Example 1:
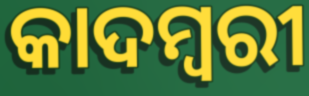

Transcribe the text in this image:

କାଦମ୍ବରୀ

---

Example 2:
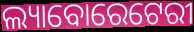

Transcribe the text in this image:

ଲ୍ୟାବୋରେଟେରୀ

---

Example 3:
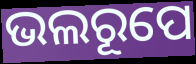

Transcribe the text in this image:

ଭଲରୂପେ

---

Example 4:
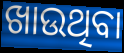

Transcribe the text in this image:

ଖାଉଥିବା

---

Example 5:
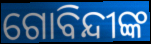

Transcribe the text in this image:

ଗୋବିନ୍ଦୀଙ୍କ